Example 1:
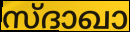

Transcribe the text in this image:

സ്ദാഖാ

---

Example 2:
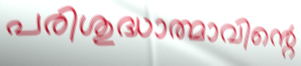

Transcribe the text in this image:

പരിശുദ്ധാത്മാവിന്റെ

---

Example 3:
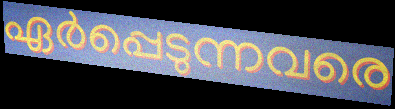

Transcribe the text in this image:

ഏർപ്പെടുന്നവരെ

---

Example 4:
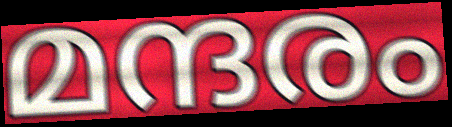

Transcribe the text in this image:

മന്ദരം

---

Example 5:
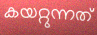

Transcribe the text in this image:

കയറ്റുന്നത്